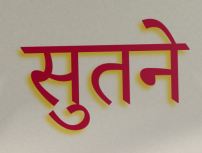
सुतने